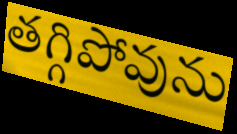
తగ్గిపోవును